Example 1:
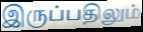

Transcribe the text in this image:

இருப்பதிலும்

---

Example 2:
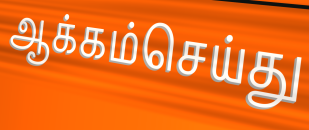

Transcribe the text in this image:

ஆக்கம்செய்து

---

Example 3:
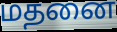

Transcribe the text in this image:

மதனை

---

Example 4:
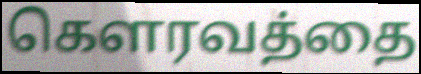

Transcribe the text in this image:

கௌரவத்தை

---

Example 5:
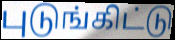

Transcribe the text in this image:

புடுங்கிட்டு